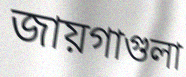
জায়গাগুলা